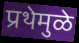
प्रथेमुळे